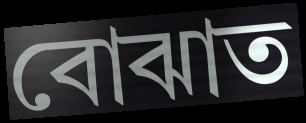
বোঝাত